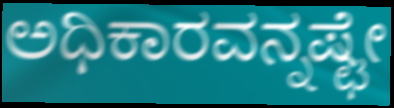
ಅಧಿಕಾರವನ್ನಷ್ಟೇ